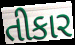
તીકાર